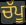
ਚੱਪੂ